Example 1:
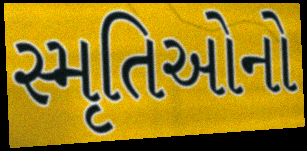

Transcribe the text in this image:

સ્મૃતિઓનો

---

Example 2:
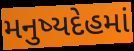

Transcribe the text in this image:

મનુષ્યદેહમાં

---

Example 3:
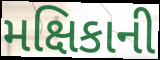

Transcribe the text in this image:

મક્ષિકાની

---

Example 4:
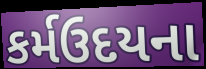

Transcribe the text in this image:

કર્મઉદયના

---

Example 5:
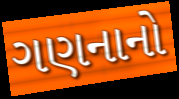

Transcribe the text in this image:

ગણનાનો